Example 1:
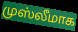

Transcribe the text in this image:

முஸ்லீமாக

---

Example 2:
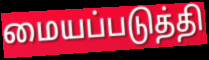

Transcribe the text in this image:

மையப்படுத்தி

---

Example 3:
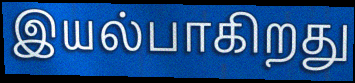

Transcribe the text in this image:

இயல்பாகிறது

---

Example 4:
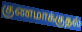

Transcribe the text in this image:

குணமாக்குதல்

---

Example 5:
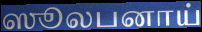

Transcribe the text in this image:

ஸூலபனாய்